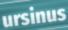
ursinus